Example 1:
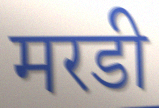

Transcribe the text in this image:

मरडी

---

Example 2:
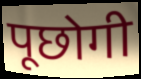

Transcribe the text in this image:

पूछोगी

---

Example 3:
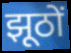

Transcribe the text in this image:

झूठों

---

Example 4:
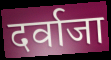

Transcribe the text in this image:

दर्वाजा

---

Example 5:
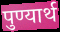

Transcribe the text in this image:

पुण्यार्थ